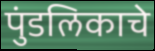
पुंडलिकाचे